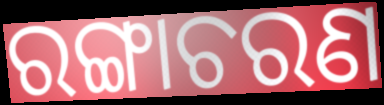
ରଙ୍ଗାଚରଣ